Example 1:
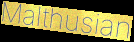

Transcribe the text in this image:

Malthusian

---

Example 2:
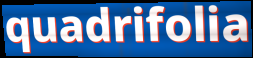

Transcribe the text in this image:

quadrifolia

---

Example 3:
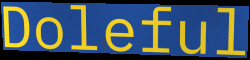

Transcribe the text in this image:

Doleful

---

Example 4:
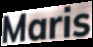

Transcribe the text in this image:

Maris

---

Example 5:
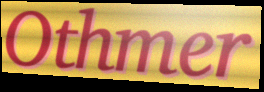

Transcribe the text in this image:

Othmer